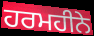
ਹਰਮਹੀਨੇ